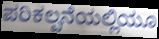
ಪರಿಕಲ್ಪನೆಯಲ್ಲಿಯೂ